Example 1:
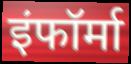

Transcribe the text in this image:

इंफॉर्मा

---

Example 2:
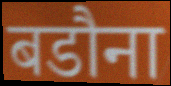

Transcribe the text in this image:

बडौना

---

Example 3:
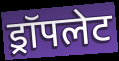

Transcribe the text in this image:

ड्रॉपलेट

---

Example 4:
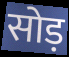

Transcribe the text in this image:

सोड़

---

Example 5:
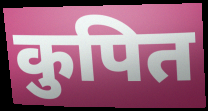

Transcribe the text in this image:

कुपित